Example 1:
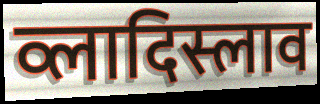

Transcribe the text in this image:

व्लादिस्लाव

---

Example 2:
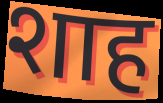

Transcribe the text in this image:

शाह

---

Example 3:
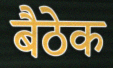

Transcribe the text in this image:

बैठेक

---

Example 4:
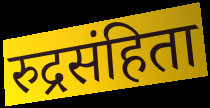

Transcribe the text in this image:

रुद्रसंहिता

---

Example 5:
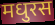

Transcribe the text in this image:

मधुरस